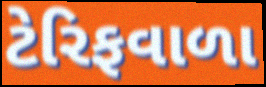
ટેરિફવાળા